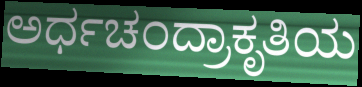
ಅರ್ಧಚಂದ್ರಾಕೃತಿಯ